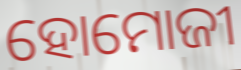
ହୋମୋଜୀ